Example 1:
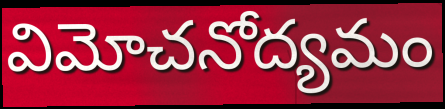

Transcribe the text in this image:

విమోచనోద్యమం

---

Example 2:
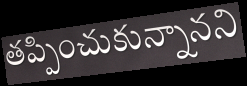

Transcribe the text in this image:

తప్పించుకున్నానని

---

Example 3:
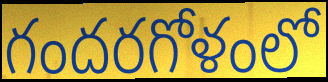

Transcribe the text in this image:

గందరగోళంలో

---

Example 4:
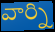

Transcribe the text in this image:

వార్ని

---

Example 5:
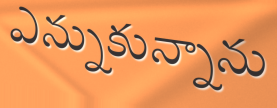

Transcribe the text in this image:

ఎన్నుకున్నాను